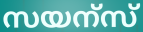
സയന്സ്